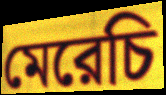
মেরেচি